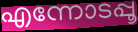
എന്നോടപ്പൂ